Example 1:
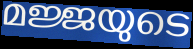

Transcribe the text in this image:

മജ്ജയുടെ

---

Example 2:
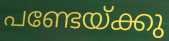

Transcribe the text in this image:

പണ്ടേയ്ക്കു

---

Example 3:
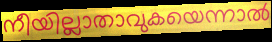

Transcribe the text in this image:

നീയില്ലാതാവുകയെന്നാൽ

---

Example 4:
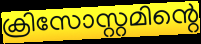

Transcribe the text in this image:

ക്രിസോസ്റ്റമിന്റെ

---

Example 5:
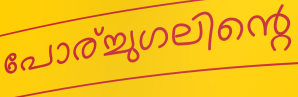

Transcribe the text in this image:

പോര്ച്ചുഗലിന്റെ